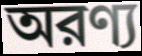
অরণ্য